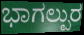
ಭಾಗಲ್ಪುರ